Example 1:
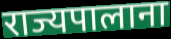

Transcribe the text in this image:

राज्यपालाना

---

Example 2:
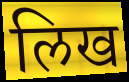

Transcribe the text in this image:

लिख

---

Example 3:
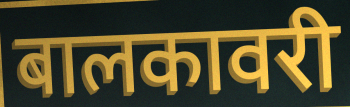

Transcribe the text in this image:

बालकावरी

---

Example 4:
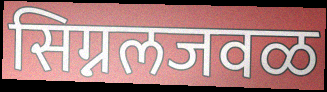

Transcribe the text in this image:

सिग्नलजवळ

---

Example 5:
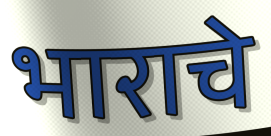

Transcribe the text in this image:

भाराचे